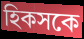
হিকসকে